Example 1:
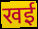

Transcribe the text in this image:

खई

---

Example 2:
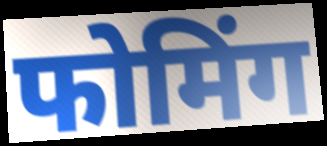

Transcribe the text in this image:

फोमिंग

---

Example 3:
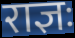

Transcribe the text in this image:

राज्ञः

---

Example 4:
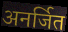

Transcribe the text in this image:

अनर्जित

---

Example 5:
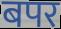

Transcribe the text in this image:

बपर